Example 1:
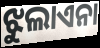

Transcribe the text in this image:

ଝୁଲାଏନା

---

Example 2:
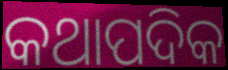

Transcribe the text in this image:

କଥାପଦିକ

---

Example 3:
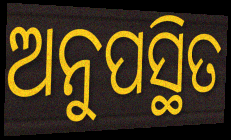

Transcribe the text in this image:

ଅନୁପସ୍ଥିତ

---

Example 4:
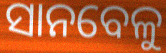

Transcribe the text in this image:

ସାନବେଳୁ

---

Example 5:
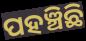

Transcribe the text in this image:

ପହଞ୍ଚିଛି